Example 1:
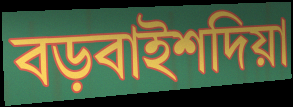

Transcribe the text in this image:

বড়বাইশদিয়া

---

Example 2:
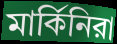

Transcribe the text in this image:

মার্কিনিরা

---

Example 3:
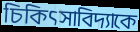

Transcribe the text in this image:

চিকিৎসাবিদ্যাকে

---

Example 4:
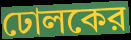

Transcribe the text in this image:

ঢোলকের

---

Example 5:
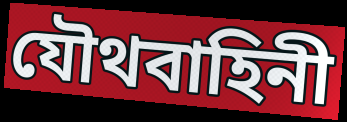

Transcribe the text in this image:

যৌথবাহিনী